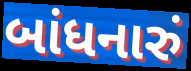
બાંધનારું